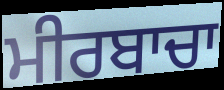
ਮੀਰਬਾਚਾ